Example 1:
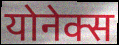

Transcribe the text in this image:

योनेक्स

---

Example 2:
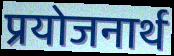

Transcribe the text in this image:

प्रयोजनार्थ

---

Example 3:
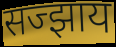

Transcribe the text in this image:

सज्झाय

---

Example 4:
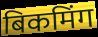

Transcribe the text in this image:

बिकमिंग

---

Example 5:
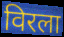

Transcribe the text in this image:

विरला